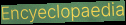
Encyeclopaedia